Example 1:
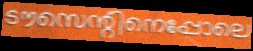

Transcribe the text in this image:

ടൗസെന്റിനെപ്പോലെ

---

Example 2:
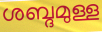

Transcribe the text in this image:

ശബ്ദമുള്ള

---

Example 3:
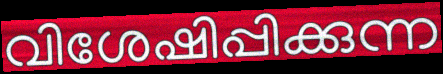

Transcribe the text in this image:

വിശേഷിപ്പിക്കുന്ന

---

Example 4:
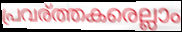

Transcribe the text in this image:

പ്രവര്ത്തകരെല്ലാം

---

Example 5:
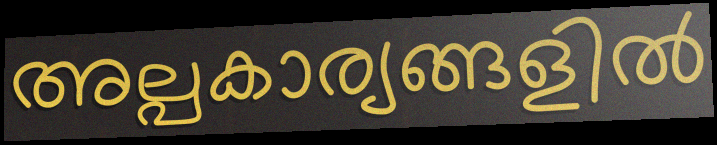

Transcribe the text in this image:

അല്പകാര്യങ്ങളിൽ